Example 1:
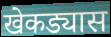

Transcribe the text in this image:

खेकड्यास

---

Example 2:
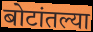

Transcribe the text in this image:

बोटांतल्या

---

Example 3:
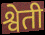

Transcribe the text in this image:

श्वेती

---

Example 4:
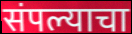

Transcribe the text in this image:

संपल्याचा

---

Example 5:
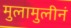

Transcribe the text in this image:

मुलामुलीनं